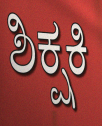
ಶಿಕ್ಷಕಿ